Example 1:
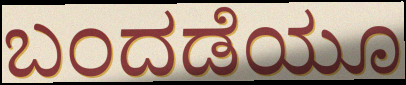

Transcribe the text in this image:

ಬಂದಡೆಯೂ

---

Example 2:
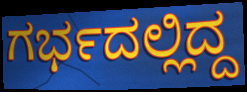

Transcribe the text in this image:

ಗರ್ಭದಲ್ಲಿದ್ದ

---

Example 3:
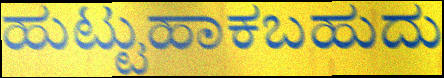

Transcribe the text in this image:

ಹುಟ್ಟುಹಾಕಬಹುದು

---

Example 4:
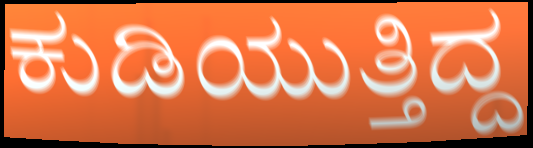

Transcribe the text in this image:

ಕುಡಿಯುತ್ತಿದ್ದ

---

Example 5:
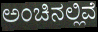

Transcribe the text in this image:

ಅಂಚಿನಲ್ಲಿವೆ